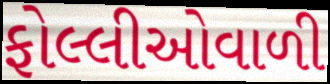
ફોલ્લીઓવાળી